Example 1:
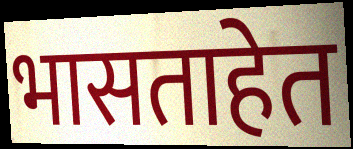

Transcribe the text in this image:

भासताहेत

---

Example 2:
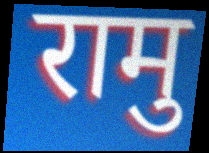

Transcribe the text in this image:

रामु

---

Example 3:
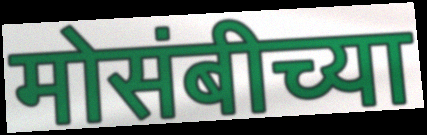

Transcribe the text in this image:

मोसंबीच्या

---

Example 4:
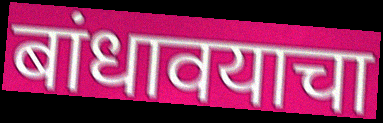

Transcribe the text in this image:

बांधावयाचा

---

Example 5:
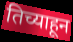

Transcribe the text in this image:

तिच्याहून